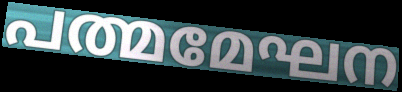
പത്മമേഘന